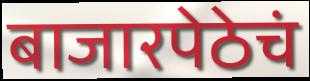
बाजारपेठेचं